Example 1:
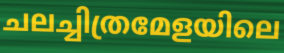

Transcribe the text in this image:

ചലച്ചിത്രമേളയിലെ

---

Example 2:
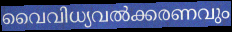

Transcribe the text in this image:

വൈവിധ്യവൽക്കരണവും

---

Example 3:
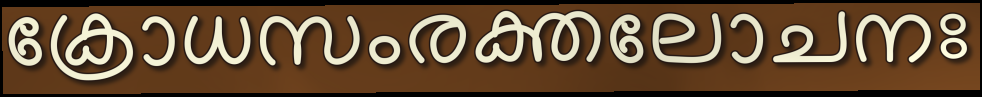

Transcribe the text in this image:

ക്രോധസംരക്തലോചനഃ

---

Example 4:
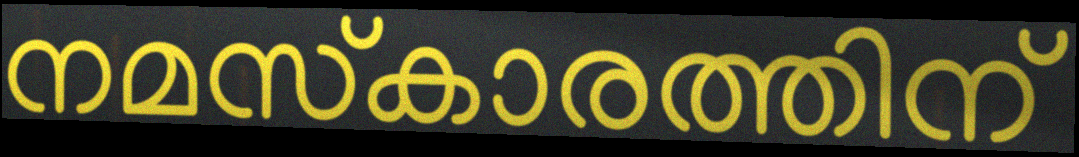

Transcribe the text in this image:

നമസ്‌കാരത്തിന്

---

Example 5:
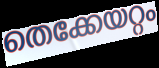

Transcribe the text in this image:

തെക്കേയറ്റം